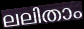
ലലിതാം